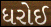
ધરોઈ